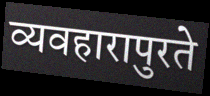
व्यवहारापुरते